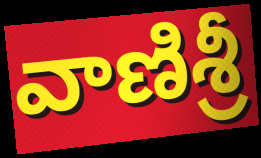
వాణిశ్రీ